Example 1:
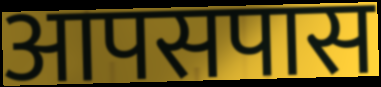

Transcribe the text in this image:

आपसपास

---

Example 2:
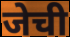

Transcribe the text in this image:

जेची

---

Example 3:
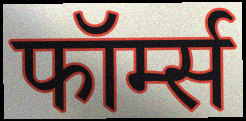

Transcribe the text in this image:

फॉर्म्स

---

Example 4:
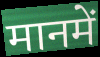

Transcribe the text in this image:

मानमें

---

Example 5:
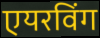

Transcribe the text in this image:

एयरविंग